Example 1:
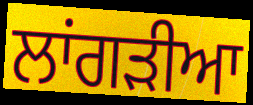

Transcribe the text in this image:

ਲਾਂਗੜੀਆ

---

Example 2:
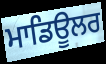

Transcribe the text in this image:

ਮਾਡਿਊਲਰ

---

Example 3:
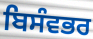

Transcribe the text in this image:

ਬਿਸੰਵਭਰ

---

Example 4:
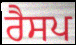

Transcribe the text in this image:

ਰੈਸਪ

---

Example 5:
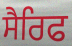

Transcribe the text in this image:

ਸੈਰਿਫ